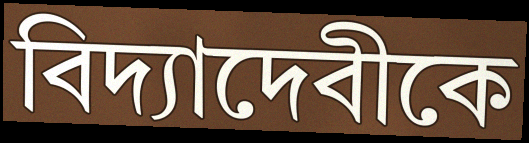
বিদ্যাদেবীকে